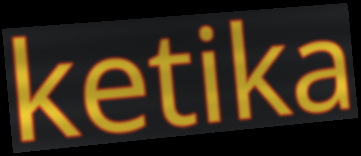
ketika